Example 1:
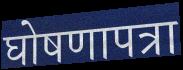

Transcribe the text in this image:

घोषणापत्रा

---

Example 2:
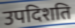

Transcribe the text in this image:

उपदिशति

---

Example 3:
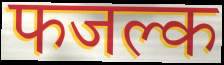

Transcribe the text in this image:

फजल्क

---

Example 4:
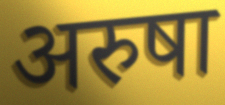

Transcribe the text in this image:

अरुषा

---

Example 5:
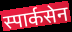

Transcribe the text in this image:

स्पार्कसेन